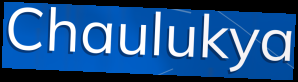
Chaulukya